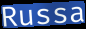
Russa